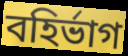
বহির্ভাগ